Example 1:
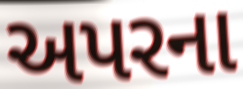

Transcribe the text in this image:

અપરના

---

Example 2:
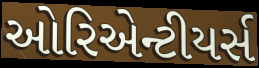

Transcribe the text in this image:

ઓરિએન્ટીયર્સ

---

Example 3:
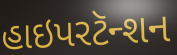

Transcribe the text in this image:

હાઇપરટૅન્શન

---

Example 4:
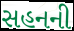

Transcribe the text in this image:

સહનની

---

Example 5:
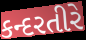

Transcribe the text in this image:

કન્દરતીરે